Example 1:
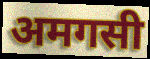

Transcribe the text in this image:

अमगसी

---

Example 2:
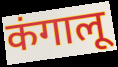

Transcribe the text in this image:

कंगालू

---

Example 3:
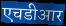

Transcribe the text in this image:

एचडीआर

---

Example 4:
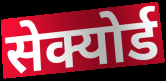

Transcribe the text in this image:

सेक्योर्ड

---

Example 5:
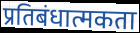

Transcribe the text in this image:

प्रतिबंधात्मकता